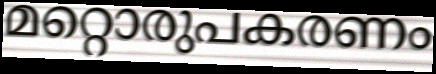
മറ്റൊരുപകരണം